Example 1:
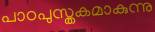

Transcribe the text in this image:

പാഠപുസ്തകമാകുന്നു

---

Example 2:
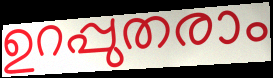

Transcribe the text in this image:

ഉറപ്പുതരാം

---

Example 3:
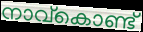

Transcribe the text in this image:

നാവ്കൊണ്ട്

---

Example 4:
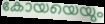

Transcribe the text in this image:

കോയയെയും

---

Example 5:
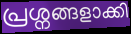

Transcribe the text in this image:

പ്രശ്നങ്ങളാക്കി